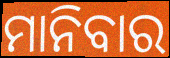
ମାନିବାର